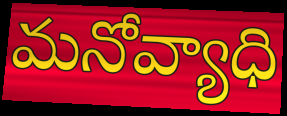
మనోవ్యాధి